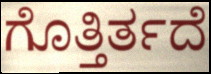
ಗೊತ್ತಿರ್ತದೆ